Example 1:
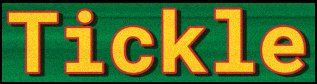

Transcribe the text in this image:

Tickle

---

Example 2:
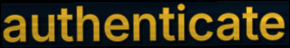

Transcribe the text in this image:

authenticate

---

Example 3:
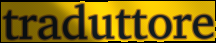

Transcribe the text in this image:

traduttore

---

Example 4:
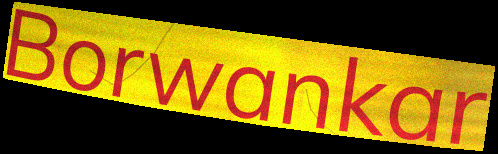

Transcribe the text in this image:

Borwankar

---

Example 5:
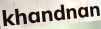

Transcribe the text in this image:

khandnan